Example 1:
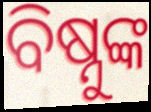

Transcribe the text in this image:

ବିଷ୍ନୁଙ୍କ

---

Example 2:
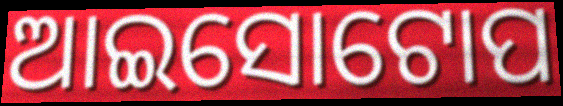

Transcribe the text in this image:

ଆଇସୋଟୋପ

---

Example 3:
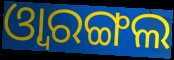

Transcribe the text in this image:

ଓ୍ବାରଙ୍ଗଲ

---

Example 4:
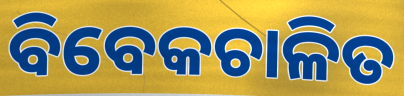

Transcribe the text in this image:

ବିବେକଚାଳିତ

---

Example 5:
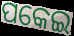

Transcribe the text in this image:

ପକେଇ